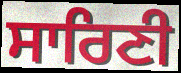
ਸਾਰਿਣੀ